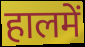
हालमें